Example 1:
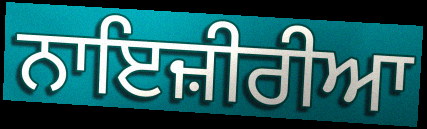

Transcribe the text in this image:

ਨਾਇਜ਼ੀਰੀਆ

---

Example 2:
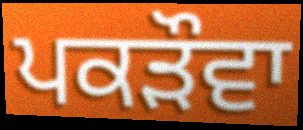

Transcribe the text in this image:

ਪਕੜੌਵਾ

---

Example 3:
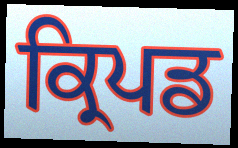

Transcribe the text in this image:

ਕ੍ਰਿਪਡ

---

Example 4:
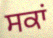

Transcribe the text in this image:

ਸਕਾਂ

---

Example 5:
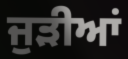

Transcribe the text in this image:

ਜੁੜੀਆਂ